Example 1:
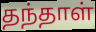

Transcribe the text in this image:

தந்தாள்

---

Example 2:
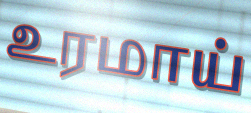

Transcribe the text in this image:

உரமாய்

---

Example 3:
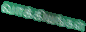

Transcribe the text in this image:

வாக்கியங்கள்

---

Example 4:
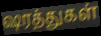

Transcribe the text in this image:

ஷரத்துகள்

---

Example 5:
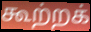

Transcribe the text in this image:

கூற்றக்